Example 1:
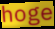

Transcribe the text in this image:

hoge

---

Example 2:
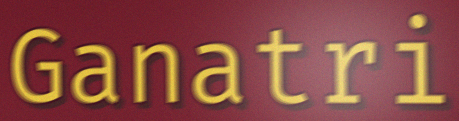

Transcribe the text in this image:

Ganatri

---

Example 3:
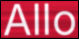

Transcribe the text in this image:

Allo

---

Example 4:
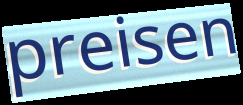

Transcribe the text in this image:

preisen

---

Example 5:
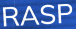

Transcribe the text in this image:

RASP